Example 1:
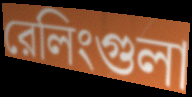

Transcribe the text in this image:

রেলিংগুলা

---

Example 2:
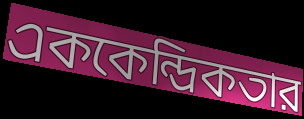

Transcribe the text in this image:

এককেন্দ্রিকতার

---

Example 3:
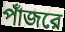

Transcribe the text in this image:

পাঁজরে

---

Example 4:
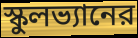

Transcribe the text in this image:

স্কুলভ্যানের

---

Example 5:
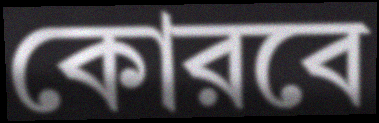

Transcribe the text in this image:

কোরবে